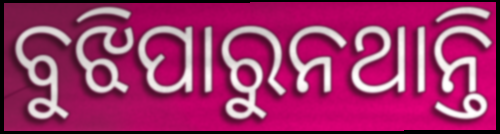
ବୁଝିପାରୁନଥାନ୍ତି